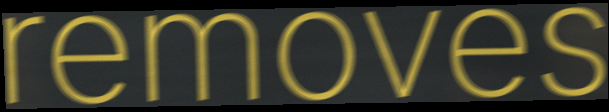
removes